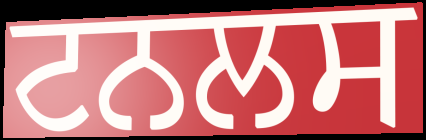
ਟਨਲਸ